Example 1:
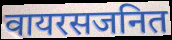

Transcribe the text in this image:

वायरसजनित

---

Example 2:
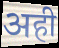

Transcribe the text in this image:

अही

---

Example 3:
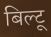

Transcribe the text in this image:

बिल्टू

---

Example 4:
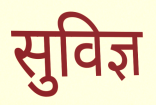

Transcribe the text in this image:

सुविज्ञ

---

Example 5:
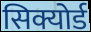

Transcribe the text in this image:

सिक्योर्ड